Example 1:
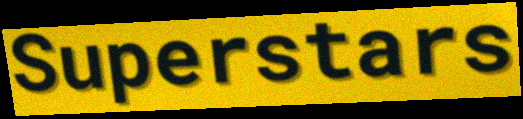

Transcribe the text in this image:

Superstars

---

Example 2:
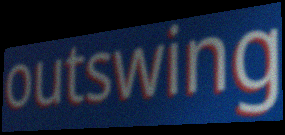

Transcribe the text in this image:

outswing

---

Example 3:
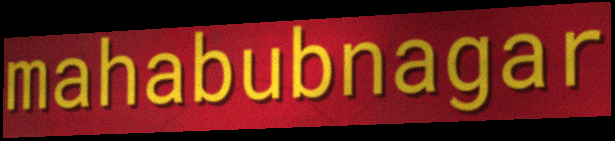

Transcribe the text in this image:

mahabubnagar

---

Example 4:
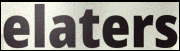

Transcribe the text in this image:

elaters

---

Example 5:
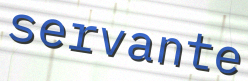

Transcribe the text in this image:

servante